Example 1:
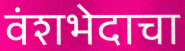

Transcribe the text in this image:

वंशभेदाचा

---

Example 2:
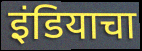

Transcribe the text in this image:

इंडियाचा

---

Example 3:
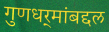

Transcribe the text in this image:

गुणधर्मांबद्दल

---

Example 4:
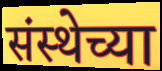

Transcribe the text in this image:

संस्थेच्या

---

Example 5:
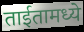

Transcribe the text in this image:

ताईतामध्ये